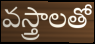
వస్త్రాలతో